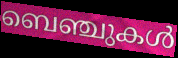
ബെഞ്ചുകൾ